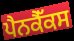
ਪੈਨਕੈੱਕਸ